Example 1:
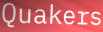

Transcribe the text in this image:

Quakers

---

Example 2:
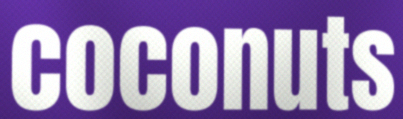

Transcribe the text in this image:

coconuts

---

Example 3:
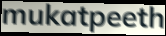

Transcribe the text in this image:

mukatpeeth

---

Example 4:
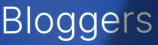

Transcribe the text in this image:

Bloggers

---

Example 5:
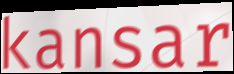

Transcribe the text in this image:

kansar